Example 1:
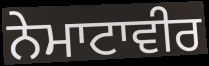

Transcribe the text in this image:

ਨੇਮਾਟਾਵੀਰ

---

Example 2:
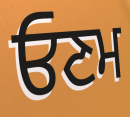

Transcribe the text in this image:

ਓਣਮ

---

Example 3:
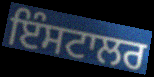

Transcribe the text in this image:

ਇੰਸਟਾਲਰ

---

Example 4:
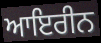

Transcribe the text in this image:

ਆਇਰੀਨ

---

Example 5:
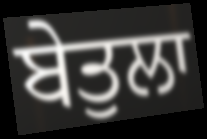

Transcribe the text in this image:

ਬੇਤੁਲਾ